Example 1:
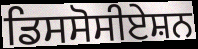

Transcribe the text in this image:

ਡਿਸਸੋਸੀਏਸ਼ਨ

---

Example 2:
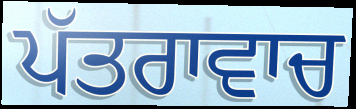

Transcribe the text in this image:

ਪੱਤਰਾਵਾਚ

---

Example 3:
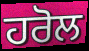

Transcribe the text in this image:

ਹਰੋਲ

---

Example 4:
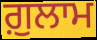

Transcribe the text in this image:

ਗ਼ੁਲਾਮ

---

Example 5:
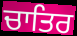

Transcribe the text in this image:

ਚਾਤਿਰ